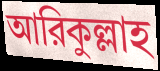
আরিকুল্লাহ